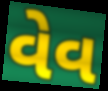
વેવ